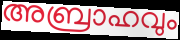
അബ്രാഹവും